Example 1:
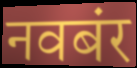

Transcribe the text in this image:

नवबंर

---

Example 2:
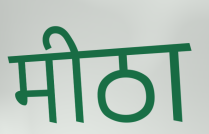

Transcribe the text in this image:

मीठा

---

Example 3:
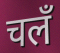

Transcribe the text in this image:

चलँ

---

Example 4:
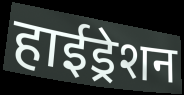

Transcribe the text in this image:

हाईड्रेशन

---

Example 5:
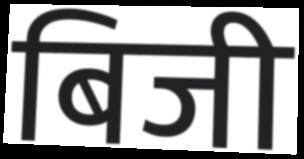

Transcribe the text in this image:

बिजी